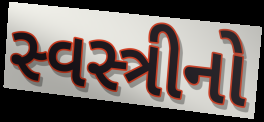
સ્વસ્ત્રીનો